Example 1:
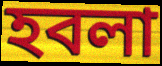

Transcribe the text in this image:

হবলা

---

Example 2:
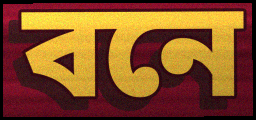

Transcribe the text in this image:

বনে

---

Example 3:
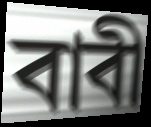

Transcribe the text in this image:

বাবী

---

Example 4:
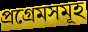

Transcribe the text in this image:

প্ৰগ্ৰেমসমূহ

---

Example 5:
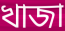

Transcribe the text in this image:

খাজা